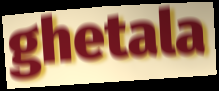
ghetala